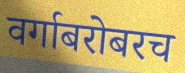
वर्गाबरोबरच